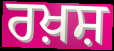
ਰਖ਼ਸ਼